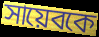
সায়েবকে